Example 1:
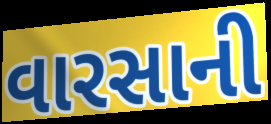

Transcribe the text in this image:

વારસાની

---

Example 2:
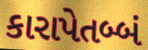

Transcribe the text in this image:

કારાપેતબ્બં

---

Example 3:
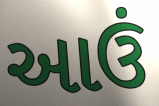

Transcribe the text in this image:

આઉં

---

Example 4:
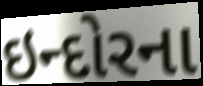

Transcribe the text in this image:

ઇન્દોરના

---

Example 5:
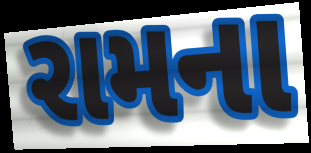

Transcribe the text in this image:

રામના